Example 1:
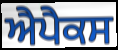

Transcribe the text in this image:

ਐਪੈਕਸ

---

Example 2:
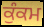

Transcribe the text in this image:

ਕੁੰਕਮ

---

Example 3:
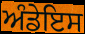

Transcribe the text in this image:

ਅੰਡੇਇਸ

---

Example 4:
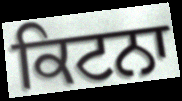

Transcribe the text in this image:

ਕਿਟਨਾ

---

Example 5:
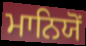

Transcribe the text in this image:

ਮਾਨਿਯੋਂ